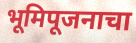
भूमिपूजनाचा